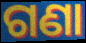
ଗଣା